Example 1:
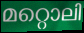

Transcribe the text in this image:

മറ്റൊലി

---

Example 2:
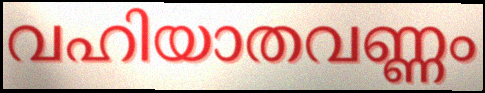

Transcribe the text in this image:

വഹിയാതവണ്ണം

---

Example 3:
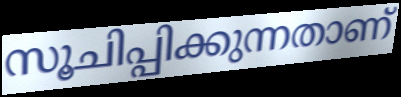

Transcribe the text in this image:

സൂചിപ്പിക്കുന്നതാണ്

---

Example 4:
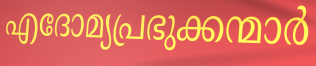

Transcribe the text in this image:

എദോമ്യപ്രഭുക്കന്മാർ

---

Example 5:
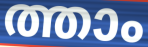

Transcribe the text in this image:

ത്താം